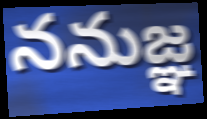
ననుజ్ఞ